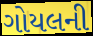
ગોયલની